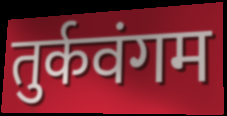
तुर्कवंगम